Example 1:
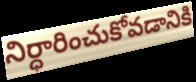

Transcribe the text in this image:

నిర్ధారించుకోవడానికి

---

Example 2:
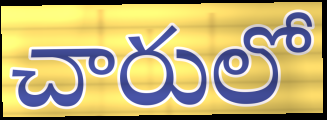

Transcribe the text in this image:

చారులో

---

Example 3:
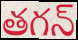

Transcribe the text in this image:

తగన్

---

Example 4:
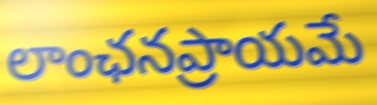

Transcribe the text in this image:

లాంఛనప్రాయమే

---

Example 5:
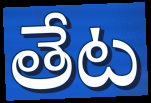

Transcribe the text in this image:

తేట